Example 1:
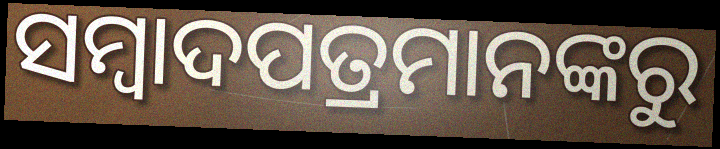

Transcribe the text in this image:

ସମ୍ୱାଦପତ୍ରମାନଙ୍କରୁ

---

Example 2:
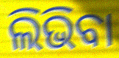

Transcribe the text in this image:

ଲିଭିବା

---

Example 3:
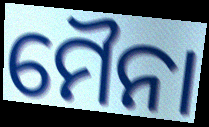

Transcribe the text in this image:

ମୈନା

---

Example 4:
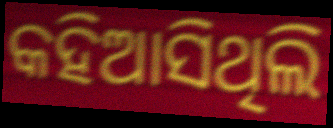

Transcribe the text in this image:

କହିଆସିଥିଲି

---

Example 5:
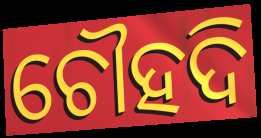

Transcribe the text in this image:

ଚୌହଦି